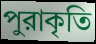
পুরাকৃতি